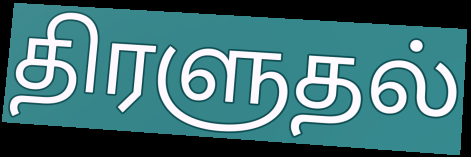
திரளுதல்